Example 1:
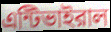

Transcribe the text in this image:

এন্টিভাইরাল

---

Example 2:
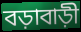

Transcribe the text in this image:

বড়াবাড়ী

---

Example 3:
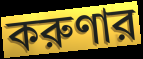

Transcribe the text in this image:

করুণার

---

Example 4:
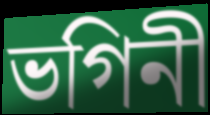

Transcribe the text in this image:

ভগিনী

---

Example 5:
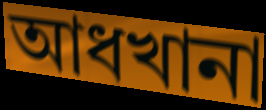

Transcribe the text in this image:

আধখানা